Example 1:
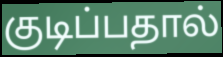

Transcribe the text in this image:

குடிப்பதால்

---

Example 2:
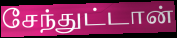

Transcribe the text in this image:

சேந்துட்டான்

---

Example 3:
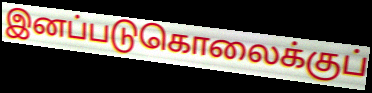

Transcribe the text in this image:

இனப்படுகொலைக்குப்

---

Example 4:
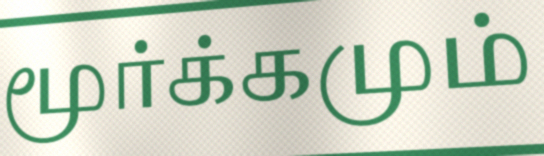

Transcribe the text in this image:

மூர்க்கமும்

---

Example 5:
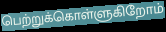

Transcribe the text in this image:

பெற்றுக்கொள்ளுகிறோம்